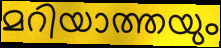
മറിയാത്തയും